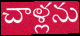
చాళ్లను